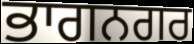
ਭਾਗਨਗਰ